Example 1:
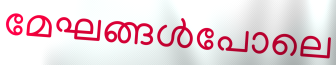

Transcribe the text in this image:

മേഘങ്ങൾപോലെ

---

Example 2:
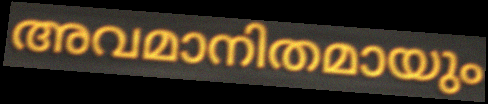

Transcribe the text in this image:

അവമാനിതമായും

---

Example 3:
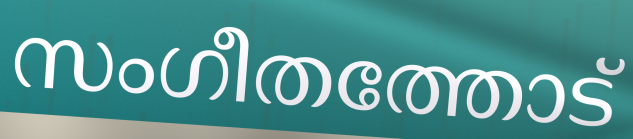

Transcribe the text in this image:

സംഗീതത്തോട്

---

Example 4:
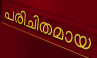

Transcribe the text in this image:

പരിചിതമായ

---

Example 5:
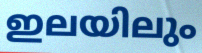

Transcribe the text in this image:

ഇലയിലും